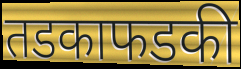
तडकाफडकी